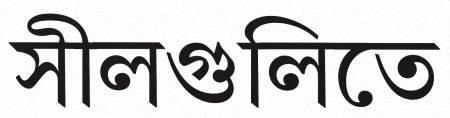
সীলগুলিতে